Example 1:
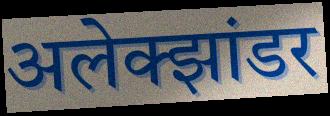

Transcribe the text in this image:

अलेक्झांडर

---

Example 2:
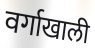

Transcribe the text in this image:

वर्गाखाली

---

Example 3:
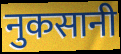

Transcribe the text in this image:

नुकसानी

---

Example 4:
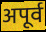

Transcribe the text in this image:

अपूर्व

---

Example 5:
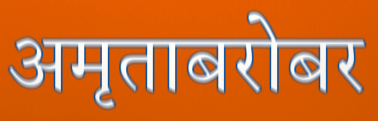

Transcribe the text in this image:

अमृताबरोबर